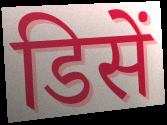
डिसें